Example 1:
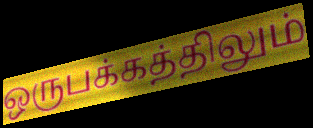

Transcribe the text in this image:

ஒருபக்கத்திலும்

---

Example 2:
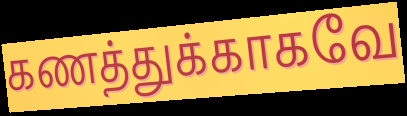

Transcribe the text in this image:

கணத்துக்காகவே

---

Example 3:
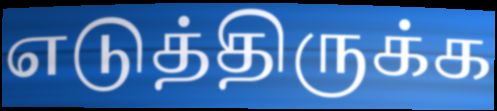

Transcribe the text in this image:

எடுத்திருக்க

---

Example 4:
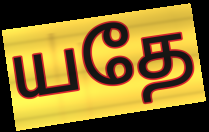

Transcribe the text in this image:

யதே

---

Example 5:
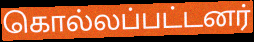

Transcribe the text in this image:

கொல்லப்பட்டனர்